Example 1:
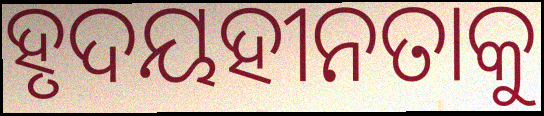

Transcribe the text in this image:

ହୃଦୟହୀନତାକୁ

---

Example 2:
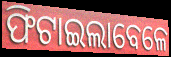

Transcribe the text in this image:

ଫିଟାଇଲାବେଳେ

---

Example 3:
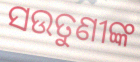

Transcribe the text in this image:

ସଉତୁଣୀଙ୍କ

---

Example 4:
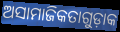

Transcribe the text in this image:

ଅସାମାଜିକତାଗୁଡ଼ାକ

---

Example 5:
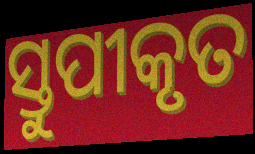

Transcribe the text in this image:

ସ୍ତୁପୀକୃତ